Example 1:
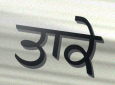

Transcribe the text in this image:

ਤਾਕੇ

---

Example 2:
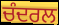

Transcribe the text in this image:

ਚੰਦਰਲ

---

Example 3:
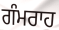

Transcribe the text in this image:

ਗੰਮਰਾਹ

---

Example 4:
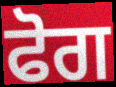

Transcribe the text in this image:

ਫੋਗ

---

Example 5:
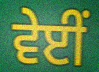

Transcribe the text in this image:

ਵੇਈਂ